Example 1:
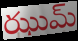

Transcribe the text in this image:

ఝుమ్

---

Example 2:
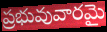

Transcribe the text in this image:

ప్రభువువారమై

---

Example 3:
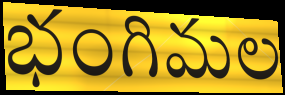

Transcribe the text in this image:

భంగిమల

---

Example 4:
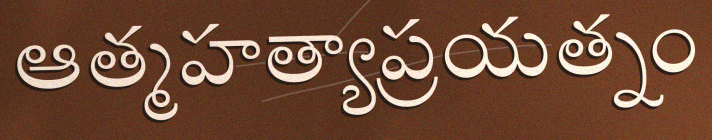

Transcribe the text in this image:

ఆత్మహత్యాప్రయత్నం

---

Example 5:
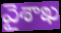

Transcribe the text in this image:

వైశాఖ